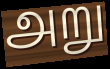
அறு